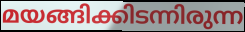
മയങ്ങിക്കിടന്നിരുന്ന